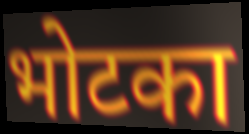
भोटका